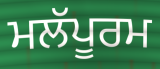
ਮਲੱਪੂਰਮ